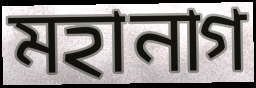
মহানাগ